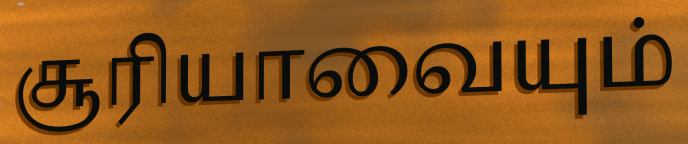
சூரியாவையும்